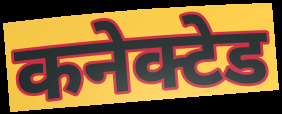
कनेक्टेड